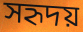
সহৃদয়